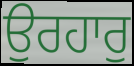
ਉਰਹਾਰੁ